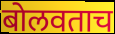
बोलवताच